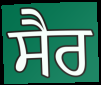
ਸੈਰ